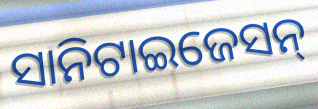
ସାନିଟାଇଜେସନ୍